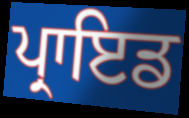
ਪ੍ਰਾਇਡ